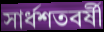
সার্ধশতবর্ষী